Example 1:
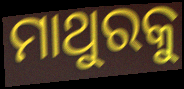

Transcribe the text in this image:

ମାଥୁରକୁ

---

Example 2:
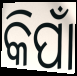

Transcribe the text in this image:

କିପାଁ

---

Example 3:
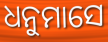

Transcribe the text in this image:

ଧନୁମାସେ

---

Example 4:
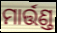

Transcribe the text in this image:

ମାର୍ତ୍ତଣ୍ଡ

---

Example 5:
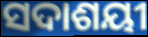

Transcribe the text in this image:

ସଦାଶୟୀ